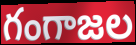
గంగాజల